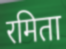
रमिता